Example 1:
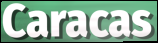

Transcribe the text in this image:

Caracas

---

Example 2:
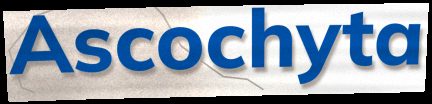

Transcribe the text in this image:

Ascochyta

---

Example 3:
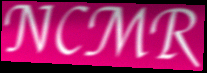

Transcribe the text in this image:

NCMR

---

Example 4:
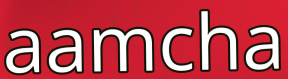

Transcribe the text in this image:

aamcha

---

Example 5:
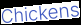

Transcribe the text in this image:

Chickens